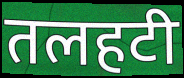
तलहटी